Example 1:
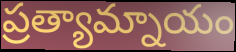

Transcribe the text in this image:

ప్రత్యామ్నాయం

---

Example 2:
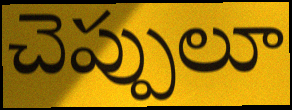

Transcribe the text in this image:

చెప్పులూ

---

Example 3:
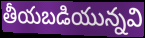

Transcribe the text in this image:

తీయబడియున్నవి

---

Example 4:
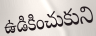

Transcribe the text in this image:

ఉడికించుకుని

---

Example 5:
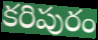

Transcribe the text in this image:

కరిపురం